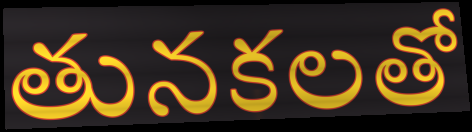
తునకలతో